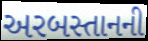
અરબસ્તાનની